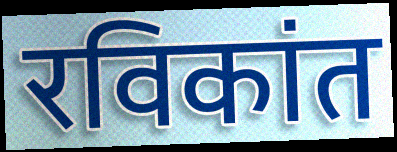
रविकांत